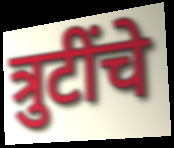
त्रुटींचे